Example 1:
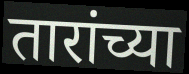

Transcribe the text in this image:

तारांच्या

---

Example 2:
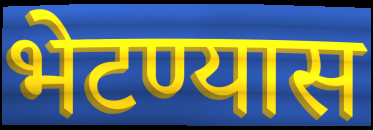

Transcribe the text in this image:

भेटण्यास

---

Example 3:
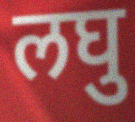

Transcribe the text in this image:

लघु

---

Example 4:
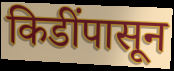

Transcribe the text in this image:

किडींपासून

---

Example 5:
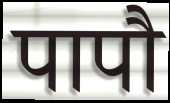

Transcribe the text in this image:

पापौ